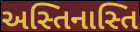
અસ્તિનાસ્તિ